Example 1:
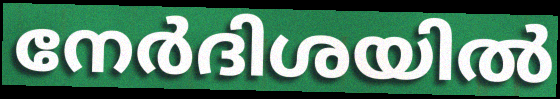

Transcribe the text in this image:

നേർദിശയിൽ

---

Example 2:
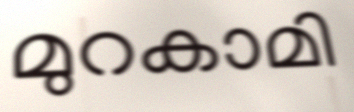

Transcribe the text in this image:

മുറകാമി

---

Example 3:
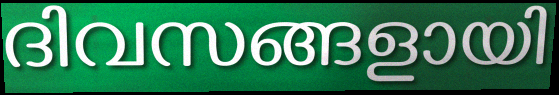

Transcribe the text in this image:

ദിവസങ്ങളായി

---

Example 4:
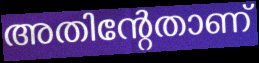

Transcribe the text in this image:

അതിന്റേതാണ്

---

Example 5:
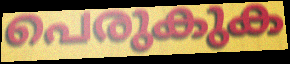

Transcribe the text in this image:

പെരുകുക